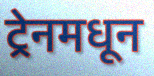
ट्रेनमधून